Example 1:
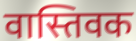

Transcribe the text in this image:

वास्तिवक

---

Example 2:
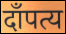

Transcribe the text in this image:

दाँपत्य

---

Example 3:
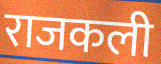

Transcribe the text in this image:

राजकली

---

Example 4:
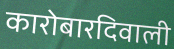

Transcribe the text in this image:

कारोबारदिवाली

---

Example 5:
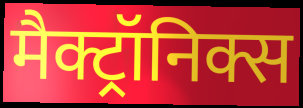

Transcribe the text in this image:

मैक्ट्रॉनिक्स